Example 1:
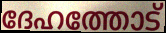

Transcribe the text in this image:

ദേഹത്തോട്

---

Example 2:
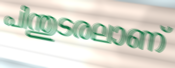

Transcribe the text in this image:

പിന്തുടരലാണ്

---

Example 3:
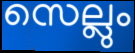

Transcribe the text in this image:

സെല്ലും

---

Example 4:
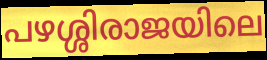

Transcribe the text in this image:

പഴശ്ശിരാജയിലെ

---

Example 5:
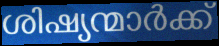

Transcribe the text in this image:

ശിഷ്യന്മാർക്ക്